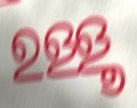
ഉള്ളൂ